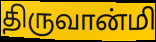
திருவான்மி